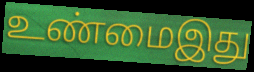
உண்மைஇது